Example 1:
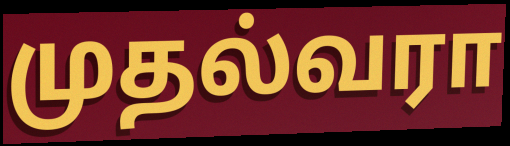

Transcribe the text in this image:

முதல்வரா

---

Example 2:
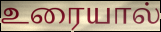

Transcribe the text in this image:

உரையால்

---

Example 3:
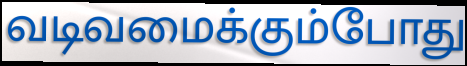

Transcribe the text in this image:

வடிவமைக்கும்போது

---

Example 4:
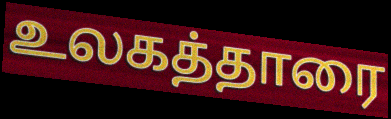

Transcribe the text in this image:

உலகத்தாரை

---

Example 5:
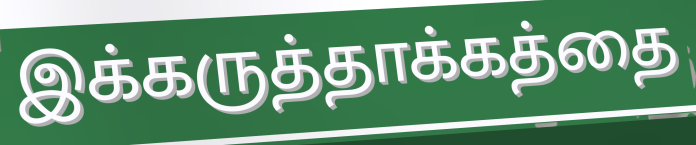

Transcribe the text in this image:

இக்கருத்தாக்கத்தை